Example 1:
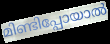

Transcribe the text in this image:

മിണ്ടിപ്പോയാൽ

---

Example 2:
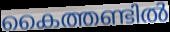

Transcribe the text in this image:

കൈത്തണ്ടിൽ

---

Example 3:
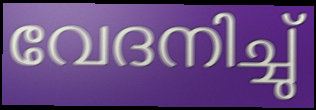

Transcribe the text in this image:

വേദനിച്ചു്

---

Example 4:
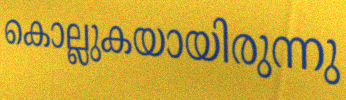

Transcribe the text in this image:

കൊല്ലുകയായിരുന്നു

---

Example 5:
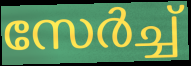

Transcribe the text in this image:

സേർച്ച്